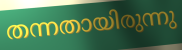
തന്നതായിരുന്നു